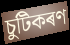
চুটিকৰণ